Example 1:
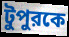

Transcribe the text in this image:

টুপুরকে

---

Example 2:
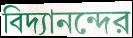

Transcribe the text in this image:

বিদ্যানন্দের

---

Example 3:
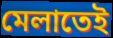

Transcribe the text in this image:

মেলাতেই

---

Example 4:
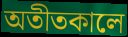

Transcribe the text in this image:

অতীতকালে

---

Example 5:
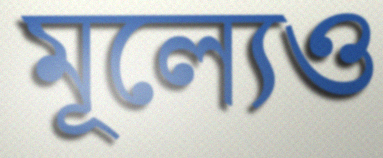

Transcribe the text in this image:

মূল্যেও